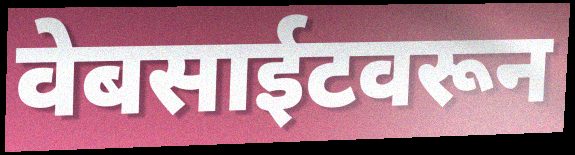
वेबसाईटवरून